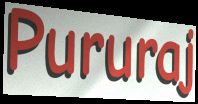
Pururaj